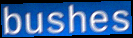
bushes